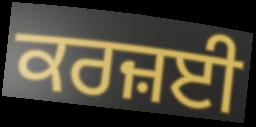
ਕਰਜ਼ਈ